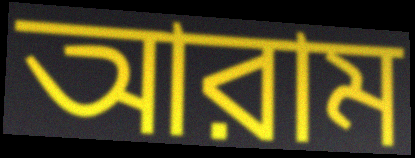
আরাম